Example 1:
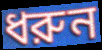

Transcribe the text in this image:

ধরুন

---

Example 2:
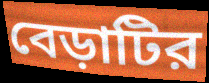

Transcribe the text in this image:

বেড়াটির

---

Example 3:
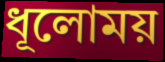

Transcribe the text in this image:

ধূলোময়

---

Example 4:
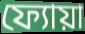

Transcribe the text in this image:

ফ্যোয়া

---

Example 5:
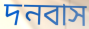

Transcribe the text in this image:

দনবাস